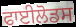
ਫਾਈਲੋਡਸ